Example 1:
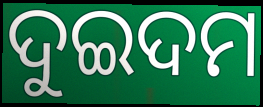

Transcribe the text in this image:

ଦୁଇଦମ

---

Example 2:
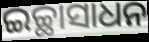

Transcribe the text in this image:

ଇଚ୍ଛାସାଧନ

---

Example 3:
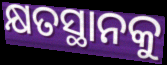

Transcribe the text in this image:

କ୍ଷତସ୍ଥାନକୁ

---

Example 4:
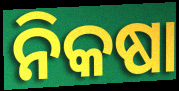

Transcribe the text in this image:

ନିକଷା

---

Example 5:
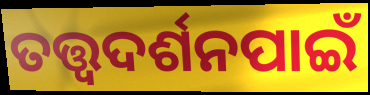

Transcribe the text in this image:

ତତ୍ତ୍ଵଦର୍ଶନପାଇଁ